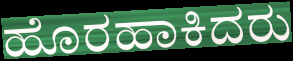
ಹೊರಹಾಕಿದರು